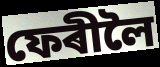
ফেৰীলৈ